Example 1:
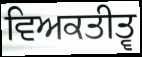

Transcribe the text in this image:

ਵਿਅਕਤੀਤ੍ਵ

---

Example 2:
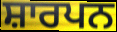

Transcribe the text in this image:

ਸ਼ਾਰਪਨ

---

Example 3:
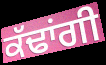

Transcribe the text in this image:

ਕੱਢਾਂਗੀ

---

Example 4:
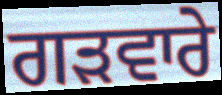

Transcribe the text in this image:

ਗੜਵਾਰੇ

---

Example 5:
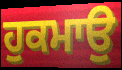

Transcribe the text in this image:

ਹੁਕਮਾਉ